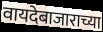
वायदेबाजाराच्या